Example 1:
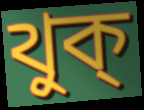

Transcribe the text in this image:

থুক্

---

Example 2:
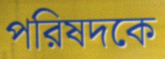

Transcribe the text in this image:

পরিষদকে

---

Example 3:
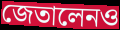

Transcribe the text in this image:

জেতালেনও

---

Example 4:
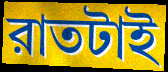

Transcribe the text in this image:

রাতটাই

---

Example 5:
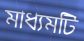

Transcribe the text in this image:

মাধ্যমটি